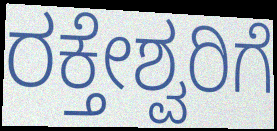
ರಕ್ತೇಶ್ವರಿಗೆ